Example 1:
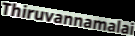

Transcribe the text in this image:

Thiruvannamalai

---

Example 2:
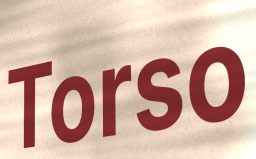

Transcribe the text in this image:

Torso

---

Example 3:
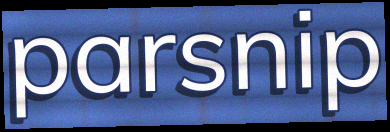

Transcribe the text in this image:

parsnip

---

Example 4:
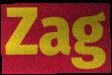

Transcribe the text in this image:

Zag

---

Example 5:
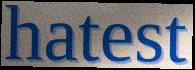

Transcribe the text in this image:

hatest